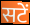
सटें